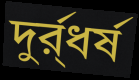
দুর্র্ধর্ষ